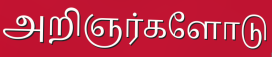
அறிஞர்களோடு